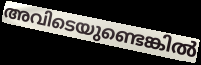
അവിടെയുണ്ടെങ്കിൽ